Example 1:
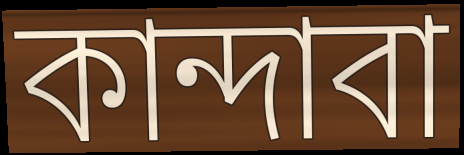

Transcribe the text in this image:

কান্দাবা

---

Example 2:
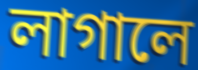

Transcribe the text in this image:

লাগালে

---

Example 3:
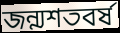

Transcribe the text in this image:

জন্মশতবর্ষ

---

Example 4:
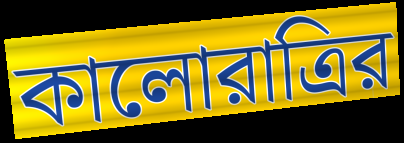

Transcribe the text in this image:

কালোরাত্রির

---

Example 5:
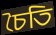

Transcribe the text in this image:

চৈতি